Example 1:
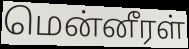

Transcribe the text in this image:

மென்னீரள்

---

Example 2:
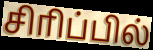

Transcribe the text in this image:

சிரிப்பில்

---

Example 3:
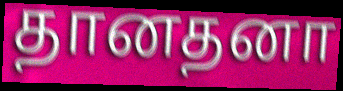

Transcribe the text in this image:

தானதனா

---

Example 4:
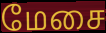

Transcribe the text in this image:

மேசை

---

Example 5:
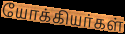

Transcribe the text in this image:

யோக்கியர்கள்